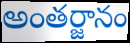
అంతర్జానం